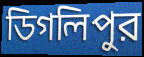
ডিগলিপুর